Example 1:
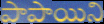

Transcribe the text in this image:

పాపాయిని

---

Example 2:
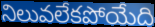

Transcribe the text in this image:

నిలువలేకపోయేది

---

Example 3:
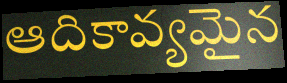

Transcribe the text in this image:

ఆదికావ్యమైన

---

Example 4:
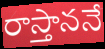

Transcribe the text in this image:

రాస్తాననే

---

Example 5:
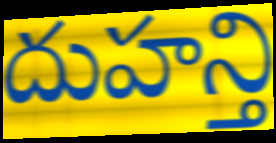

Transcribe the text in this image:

దుహన్తి